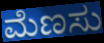
ಮೆಣಸು